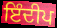
ਇੰਦੀਪ